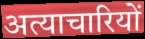
अत्याचारियों